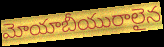
మోయాబీయురాలైన